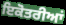
ਇਕੋਤਰੀਆਂ